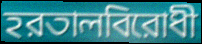
হরতালবিরোধী